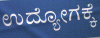
ಉದ್ಯೋಗಕ್ಕೆ